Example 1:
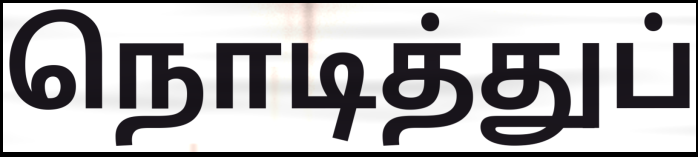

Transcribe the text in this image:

நொடித்துப்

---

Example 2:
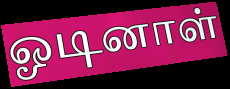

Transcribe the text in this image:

ஓடினாள்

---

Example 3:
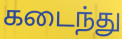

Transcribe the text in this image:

கடைந்து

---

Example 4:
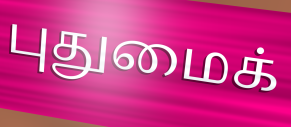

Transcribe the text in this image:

புதுமைக்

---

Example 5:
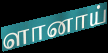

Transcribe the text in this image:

ளானாய்